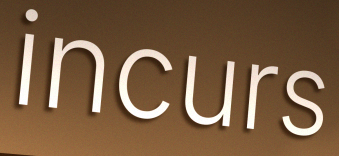
incurs